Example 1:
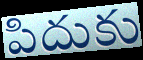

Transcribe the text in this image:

పిదుకు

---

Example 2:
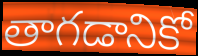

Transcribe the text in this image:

తాగడానికో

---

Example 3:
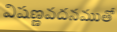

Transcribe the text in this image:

విషణ్ణవదనముతో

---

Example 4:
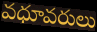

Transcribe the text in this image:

వధూవరులు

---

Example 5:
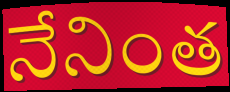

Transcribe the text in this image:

నేనింత